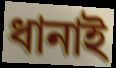
ধানাই